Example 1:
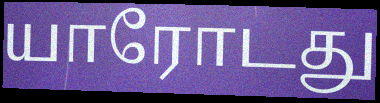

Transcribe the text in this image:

யாரோடது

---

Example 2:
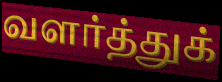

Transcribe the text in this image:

வளர்த்துக்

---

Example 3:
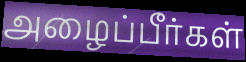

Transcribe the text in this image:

அழைப்பீர்கள்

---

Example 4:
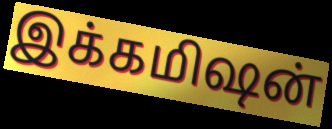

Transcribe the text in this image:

இக்கமிஷன்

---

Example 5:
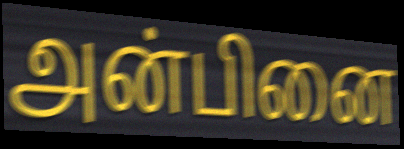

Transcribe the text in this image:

அன்பினை